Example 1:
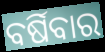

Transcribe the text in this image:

ବର୍ଷିବାର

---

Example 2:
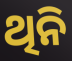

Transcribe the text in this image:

ଥିନି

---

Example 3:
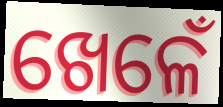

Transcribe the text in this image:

ଖେଳେଁ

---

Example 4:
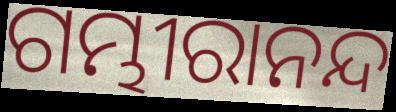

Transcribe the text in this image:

ଗମ୍ଭୀରାନନ୍ଦ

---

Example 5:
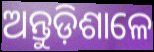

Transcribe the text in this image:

ଅନ୍ତୁଡ଼ିଶାଳେ